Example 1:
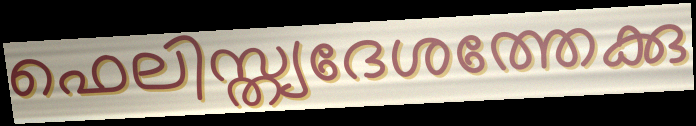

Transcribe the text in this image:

ഫെലിസ്ത്യദേശത്തേക്കു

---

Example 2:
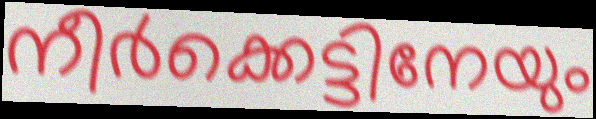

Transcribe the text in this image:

നീർക്കെട്ടിനേയും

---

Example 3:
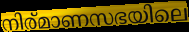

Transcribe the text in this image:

നിര്മാണസഭയിലെ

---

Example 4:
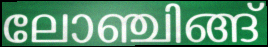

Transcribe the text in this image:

ലോഞ്ചിങ്ങ്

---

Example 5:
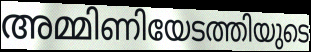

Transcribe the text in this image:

അമ്മിണിയേടത്തിയുടെ